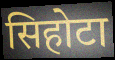
सिहोटा